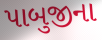
પાબુજીના